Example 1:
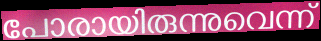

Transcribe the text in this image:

പോരായിരുന്നുവെന്ന്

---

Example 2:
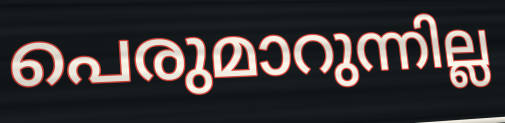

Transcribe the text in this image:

പെരുമാറുന്നില്ല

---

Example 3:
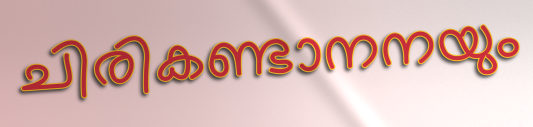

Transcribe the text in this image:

ചിരികണ്ടാനനയും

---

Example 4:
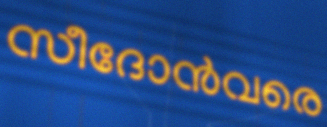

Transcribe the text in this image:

സീദോൻവരെ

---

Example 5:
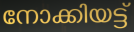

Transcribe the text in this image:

നോക്കിയട്ട്